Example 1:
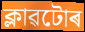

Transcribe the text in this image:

ক্লাৱটোৰ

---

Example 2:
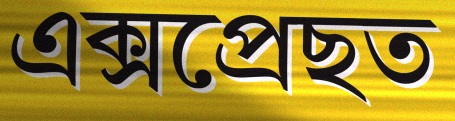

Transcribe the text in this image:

এক্সপ্ৰেছত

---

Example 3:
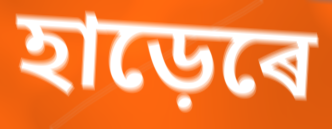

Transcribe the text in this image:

হাড়েৰে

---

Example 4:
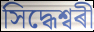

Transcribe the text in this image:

সিদ্ধেশ্বৰী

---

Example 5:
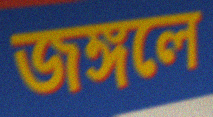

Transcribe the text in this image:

জঙ্গলে